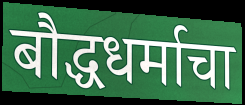
बौद्धधर्माचा